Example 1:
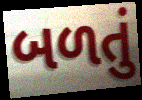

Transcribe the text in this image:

બળતું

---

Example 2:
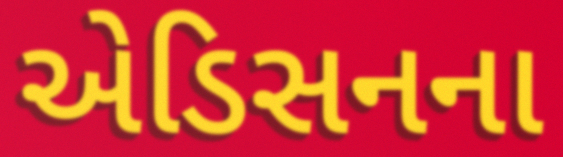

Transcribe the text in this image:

એડિસનના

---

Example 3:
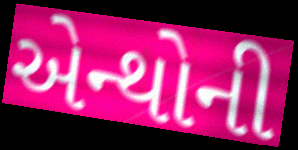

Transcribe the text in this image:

એન્થોની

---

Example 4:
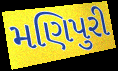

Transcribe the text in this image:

મણિપુરી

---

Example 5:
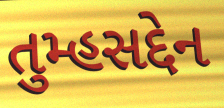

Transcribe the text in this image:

તુમ્હસદ્દેન